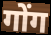
गोंग